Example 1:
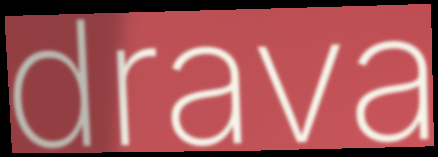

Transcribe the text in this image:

drava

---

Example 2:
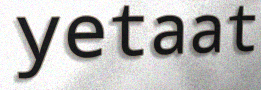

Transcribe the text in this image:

yetaat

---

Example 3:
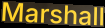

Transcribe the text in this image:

Marshall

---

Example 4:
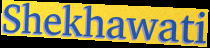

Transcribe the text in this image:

Shekhawati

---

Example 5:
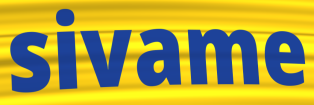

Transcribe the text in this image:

sivame